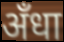
अँधा